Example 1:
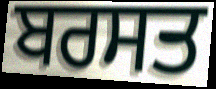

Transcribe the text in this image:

ਬਰਸਤ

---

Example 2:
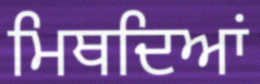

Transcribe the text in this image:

ਮਿਥਦਿਆਂ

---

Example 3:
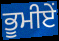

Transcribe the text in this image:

ਭੂਮੀਏਂ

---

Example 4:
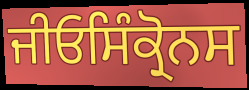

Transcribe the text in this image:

ਜੀਓਸਿੰਕ੍ਰੋਨਸ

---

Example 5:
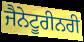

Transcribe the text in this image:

ਜੈਨੇਟੂਰੀਨਰੀ